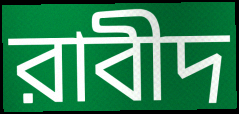
রাবীদ